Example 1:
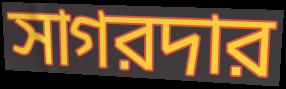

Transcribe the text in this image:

সাগরদার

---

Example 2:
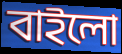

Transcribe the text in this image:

বাইলো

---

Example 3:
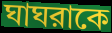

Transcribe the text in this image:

ঘাঘরাকে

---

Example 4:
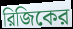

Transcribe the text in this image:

রিজিকের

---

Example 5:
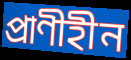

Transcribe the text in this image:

প্রাণীহীন